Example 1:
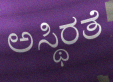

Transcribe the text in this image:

ಅಸ್ಥಿರತೆ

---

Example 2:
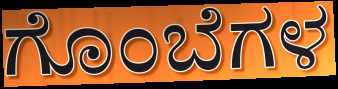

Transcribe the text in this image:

ಗೊಂಬೆಗಳ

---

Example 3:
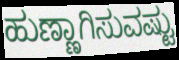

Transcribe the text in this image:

ಹುಣ್ಣಾಗಿಸುವಷ್ಟು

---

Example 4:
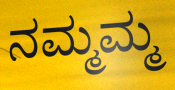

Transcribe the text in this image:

ನಮ್ಮಮ್ಮ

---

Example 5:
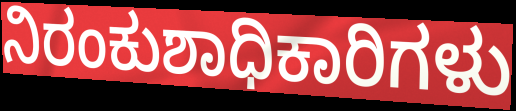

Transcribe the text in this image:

ನಿರಂಕುಶಾಧಿಕಾರಿಗಳು